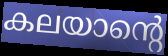
കലയാന്റെ